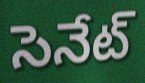
సెనేట్